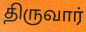
திருவார்